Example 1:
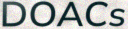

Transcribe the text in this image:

DOACs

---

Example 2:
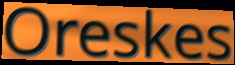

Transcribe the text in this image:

Oreskes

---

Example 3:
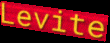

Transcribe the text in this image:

Levite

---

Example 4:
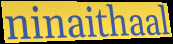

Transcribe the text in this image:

ninaithaal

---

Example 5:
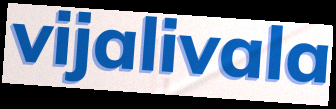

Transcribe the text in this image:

vijalivala